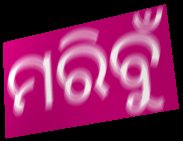
ମରିବୁଁ